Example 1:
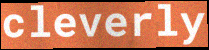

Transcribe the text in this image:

cleverly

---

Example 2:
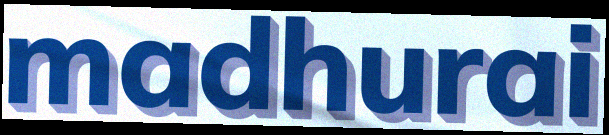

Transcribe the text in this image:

madhurai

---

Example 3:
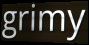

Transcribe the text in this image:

grimy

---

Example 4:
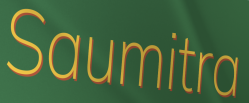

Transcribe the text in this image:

Saumitra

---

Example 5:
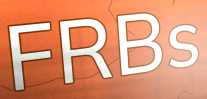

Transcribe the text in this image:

FRBs